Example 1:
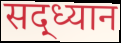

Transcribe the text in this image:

सद्ध्यान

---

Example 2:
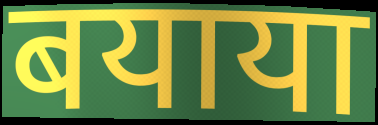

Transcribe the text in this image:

बयाया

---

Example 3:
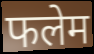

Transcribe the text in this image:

फलेम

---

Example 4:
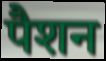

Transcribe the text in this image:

पैशन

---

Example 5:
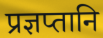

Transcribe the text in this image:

प्रज्ञप्तानि